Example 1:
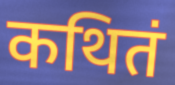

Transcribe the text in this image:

कथितं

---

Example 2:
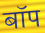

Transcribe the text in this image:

बॉप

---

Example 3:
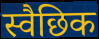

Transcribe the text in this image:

स्वैछिक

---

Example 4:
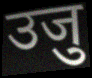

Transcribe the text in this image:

उजु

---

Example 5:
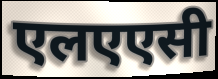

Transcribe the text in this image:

एलएएसी